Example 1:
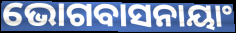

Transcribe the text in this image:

ଭୋଗବାସନାୟାଂ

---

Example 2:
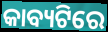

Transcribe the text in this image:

କାବ୍ୟଟିରେ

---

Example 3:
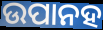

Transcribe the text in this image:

ଉପାନହ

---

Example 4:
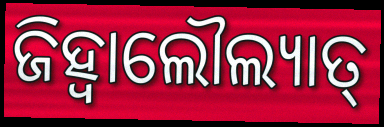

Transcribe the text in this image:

ଜିହ୍ଵାଲୌଲ୍ୟାତ୍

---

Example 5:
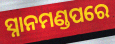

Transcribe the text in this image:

ସ୍ନାନମଣ୍ଡପରେ